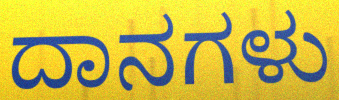
ದಾನಗಳು